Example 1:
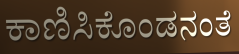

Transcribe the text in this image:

ಕಾಣಿಸಿಕೊಂಡನಂತೆ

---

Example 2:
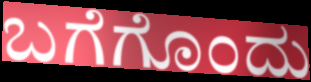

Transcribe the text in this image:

ಬಗೆಗೊಂದು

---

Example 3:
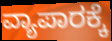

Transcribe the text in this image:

ವ್ಯಾಪಾರಕ್ಕೆ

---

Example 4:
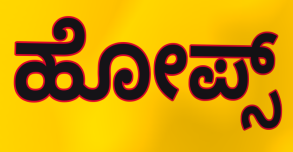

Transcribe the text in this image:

ಹೋಪ್ಸ್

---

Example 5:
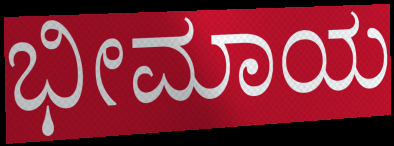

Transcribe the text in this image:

ಭೀಮಾಯ